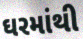
ઘરમાંથી